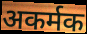
अकर्मक